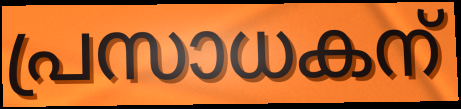
പ്രസാധകന്